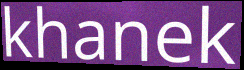
khanek